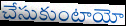
చేసుకుంటాయో